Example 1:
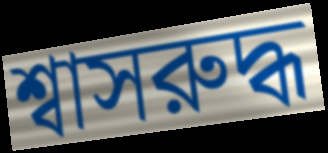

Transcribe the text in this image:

শ্বাসরুদ্ধ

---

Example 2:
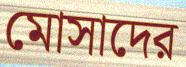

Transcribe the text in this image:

মোসাদের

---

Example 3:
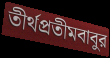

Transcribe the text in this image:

তীর্থপ্রতীমবাবুর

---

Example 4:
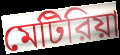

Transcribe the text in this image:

মেটিরিয়া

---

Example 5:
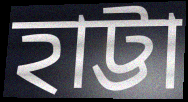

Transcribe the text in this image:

হাট্টা